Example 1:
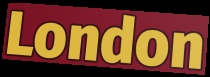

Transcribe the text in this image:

London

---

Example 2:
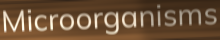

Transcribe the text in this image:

Microorganisms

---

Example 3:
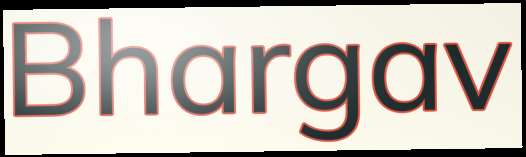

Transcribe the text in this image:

Bhargav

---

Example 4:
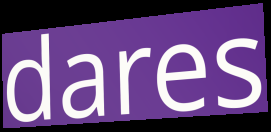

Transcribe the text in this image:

dares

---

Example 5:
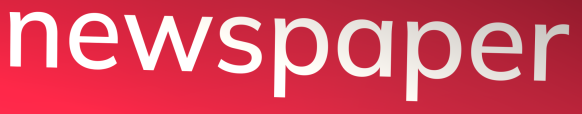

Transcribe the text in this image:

newspaper